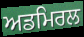
ਅਡਮਿਰਲ